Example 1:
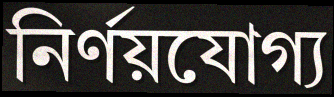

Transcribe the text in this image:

নির্ণয়যোগ্য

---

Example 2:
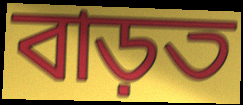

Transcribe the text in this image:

বাড়ত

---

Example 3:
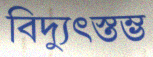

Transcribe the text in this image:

বিদ্যুৎস্তম্ভ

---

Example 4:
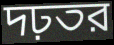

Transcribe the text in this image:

দঢ়তর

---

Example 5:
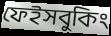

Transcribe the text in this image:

ফেইসবুকিং